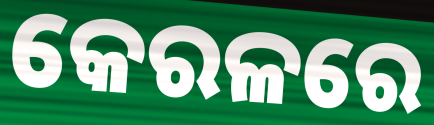
କେରଳରେ